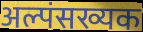
अल्पंसख्यक